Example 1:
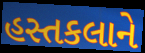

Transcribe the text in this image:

હસ્તકલાને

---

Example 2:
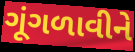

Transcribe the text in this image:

ગૂંગળાવીને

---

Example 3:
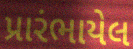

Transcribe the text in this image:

પ્રારંભાયેલ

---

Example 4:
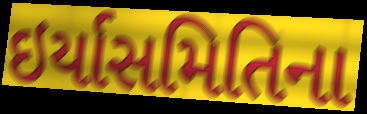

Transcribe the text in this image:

ઇર્યાસમિતિના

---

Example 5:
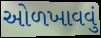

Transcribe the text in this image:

ઓળખાવવું